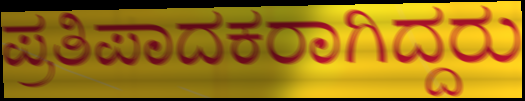
ಪ್ರತಿಪಾದಕರಾಗಿದ್ದರು